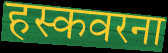
हस्कवरना